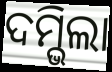
ଦମ୍ଭିଲା